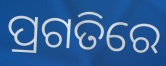
ପ୍ରଗତିରେ